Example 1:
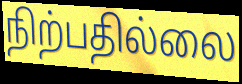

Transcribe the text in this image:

நிற்பதில்லை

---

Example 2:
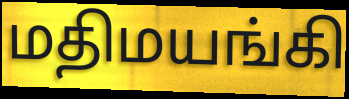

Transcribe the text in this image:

மதிமயங்கி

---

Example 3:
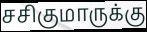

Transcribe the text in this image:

சசிகுமாருக்கு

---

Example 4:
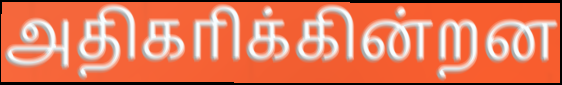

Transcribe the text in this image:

அதிகரிக்கின்றன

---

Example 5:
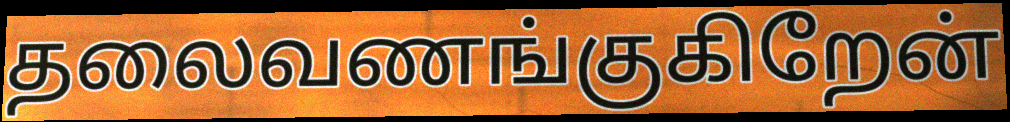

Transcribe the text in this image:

தலைவணங்குகிறேன்